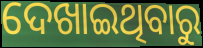
ଦେଖାଇଥିବାରୁ